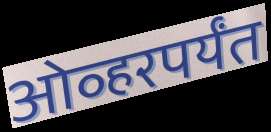
ओव्हरपर्यंत